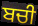
ਬਚੀ